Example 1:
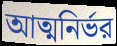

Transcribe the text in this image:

আত্মনির্ভর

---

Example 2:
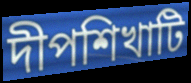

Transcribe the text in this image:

দীপশিখাটি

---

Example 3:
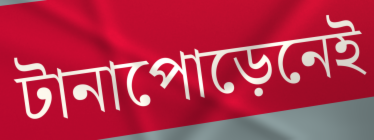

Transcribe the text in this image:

টানাপোড়েনেই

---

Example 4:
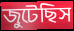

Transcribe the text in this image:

জুটেছিস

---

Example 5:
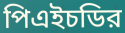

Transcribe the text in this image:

পিএইচডির